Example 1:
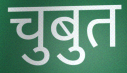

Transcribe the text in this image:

चुबुत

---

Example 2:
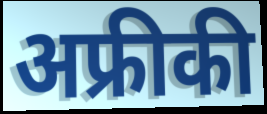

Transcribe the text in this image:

अफ्रीकी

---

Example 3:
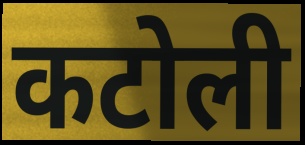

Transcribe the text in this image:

कटोली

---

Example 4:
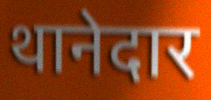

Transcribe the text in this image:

थानेदार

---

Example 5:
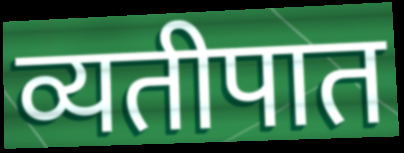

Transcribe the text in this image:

व्यतीपात